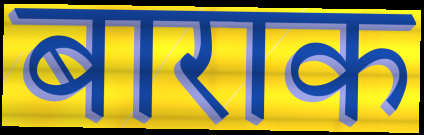
बाराक